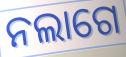
ନଲାଗେ